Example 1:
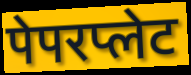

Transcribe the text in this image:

पेपरप्लेट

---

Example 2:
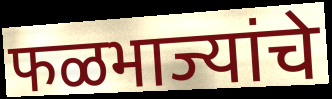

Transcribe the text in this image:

फळभाज्यांचे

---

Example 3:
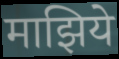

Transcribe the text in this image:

माझिये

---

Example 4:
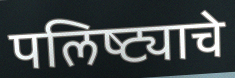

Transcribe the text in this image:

पलिष्ट्याचे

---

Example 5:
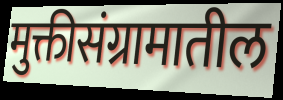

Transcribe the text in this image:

मुक्तीसंग्रामातील